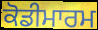
ਕੋਡੀਮਾਰਮ